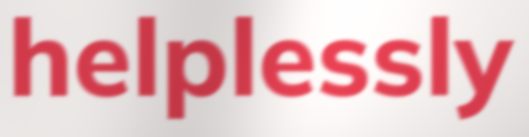
helplessly